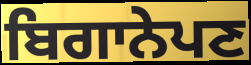
ਬਿਗਾਨੇਪਣ